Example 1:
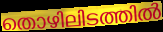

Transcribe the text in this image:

തൊഴിലിടത്തിൽ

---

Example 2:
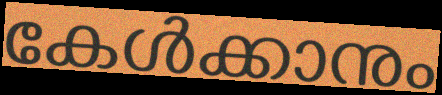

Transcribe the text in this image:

കേൾക്കാനും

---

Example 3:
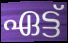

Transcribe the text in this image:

ഏട്ട്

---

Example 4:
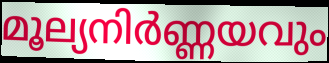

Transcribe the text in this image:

മൂല്യനിർണ്ണയവും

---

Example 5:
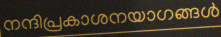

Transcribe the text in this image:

നന്ദിപ്രകാശനയാഗങ്ങൾ